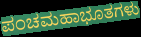
ಪಂಚಮಹಾಭೂತಗಳು